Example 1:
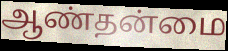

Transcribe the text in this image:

ஆண்தன்மை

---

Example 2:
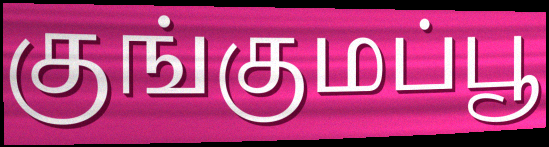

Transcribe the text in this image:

குங்குமப்பூ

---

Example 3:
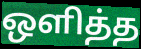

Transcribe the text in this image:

ஒளித்த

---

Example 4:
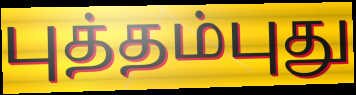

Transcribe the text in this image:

புத்தம்புது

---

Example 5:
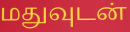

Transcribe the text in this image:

மதுவுடன்